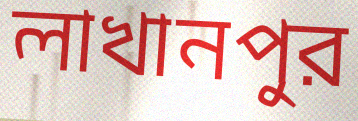
লাখানপুর